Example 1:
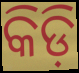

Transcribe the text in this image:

କିଡ଼ି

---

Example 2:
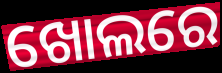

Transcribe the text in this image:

ଖୋଲରେ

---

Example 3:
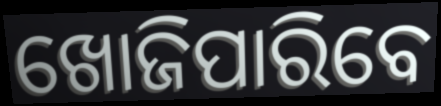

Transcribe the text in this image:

ଖୋଜିପାରିବେ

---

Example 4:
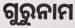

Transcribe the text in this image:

ଗୁରୁନାମ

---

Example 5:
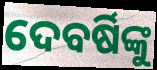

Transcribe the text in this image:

ଦେବର୍ଷିଙ୍କୁ